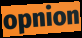
opnion